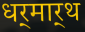
धर्मार्थ